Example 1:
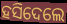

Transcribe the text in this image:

ହସିଦେଲେ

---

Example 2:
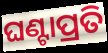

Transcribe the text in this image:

ଘଣ୍ଟାପ୍ରତି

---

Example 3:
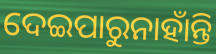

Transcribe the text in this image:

ଦେଇପାରୁନାହାଁନ୍ତି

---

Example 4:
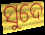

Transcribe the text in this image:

ସୁଦେ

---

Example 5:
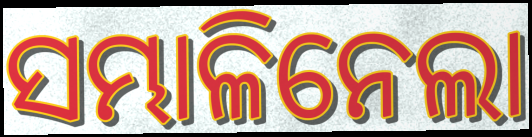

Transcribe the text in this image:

ସମ୍ଭାଳିନେଲା